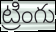
ట్రింగు